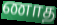
ணாத